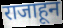
राजाहून